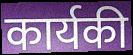
कार्यकी